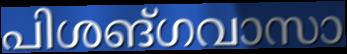
പിശങ്ഗവാസാ